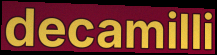
decamilli